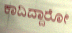
ಕಾದಿದ್ದಾರೋ